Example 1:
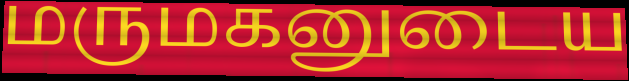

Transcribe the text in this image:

மருமகனுடைய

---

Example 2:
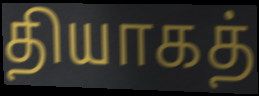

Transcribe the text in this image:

தியாகத்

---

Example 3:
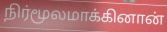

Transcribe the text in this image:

நிர்மூலமாக்கினான்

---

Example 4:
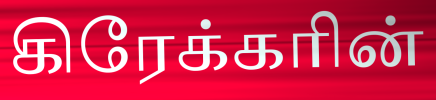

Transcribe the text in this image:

கிரேக்கரின்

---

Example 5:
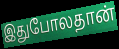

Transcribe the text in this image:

இதுபோலதான்